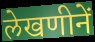
लेखणीनें